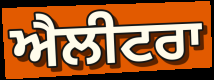
ਐਲੀਟਰਾ